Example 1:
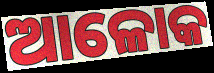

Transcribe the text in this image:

ଆଳୋକ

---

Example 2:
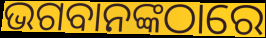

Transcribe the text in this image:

ଭଗବାନଙ୍କଠାରେ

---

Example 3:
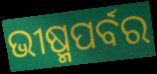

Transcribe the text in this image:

ଭୀଷ୍ମପର୍ବର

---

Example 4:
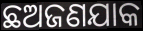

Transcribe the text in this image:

ଛଅଜଣଯାକ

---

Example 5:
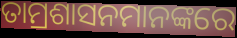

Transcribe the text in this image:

ତାମ୍ରଶାସନମାନଙ୍କରେ